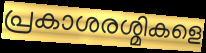
പ്രകാശരശ്മികളെ